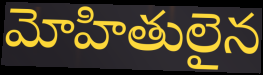
మోహితులైన